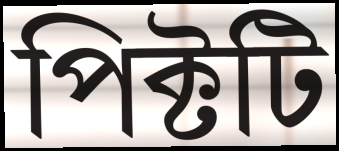
পিক্টটি